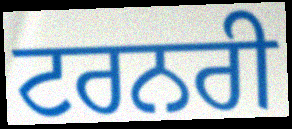
ਟਰਨਰੀ